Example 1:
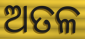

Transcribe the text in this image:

ଅତଳ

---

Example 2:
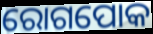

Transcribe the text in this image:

ରୋଗପୋକ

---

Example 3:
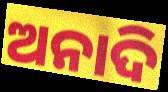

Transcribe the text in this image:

ଅନାଦି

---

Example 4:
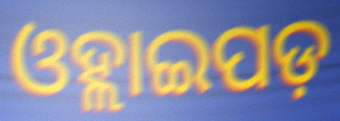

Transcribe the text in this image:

ଓହ୍ଲାଇପଡ଼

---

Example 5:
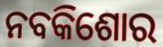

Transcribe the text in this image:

ନବକିଶୋର